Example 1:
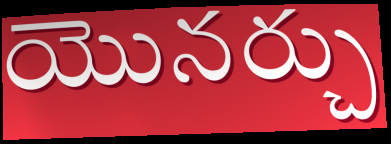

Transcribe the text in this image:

యొనర్చు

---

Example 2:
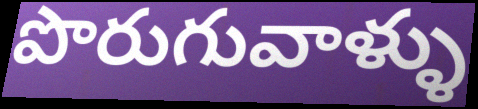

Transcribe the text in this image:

పొరుగువాళ్ళు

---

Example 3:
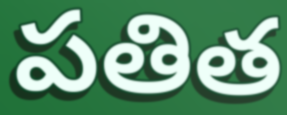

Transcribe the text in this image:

పతిత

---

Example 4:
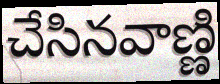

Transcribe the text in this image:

చేసినవాణ్ణి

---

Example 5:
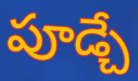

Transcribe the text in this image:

పూడ్చే